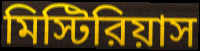
মিস্টিরিয়াস